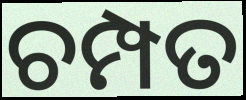
ଚମ୍ପତ